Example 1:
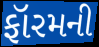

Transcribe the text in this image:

ફૉરમની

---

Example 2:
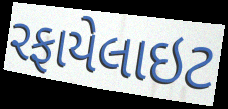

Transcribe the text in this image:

રફાયેલાઇટ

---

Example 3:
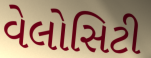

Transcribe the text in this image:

વેલોસિટી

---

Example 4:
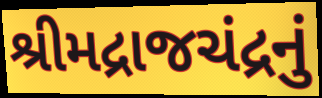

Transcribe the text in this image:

શ્રીમદ્રાજચંદ્રનું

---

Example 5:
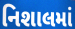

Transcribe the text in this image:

નિશાલમાં